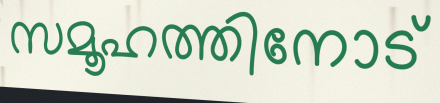
സമൂഹത്തിനോട്